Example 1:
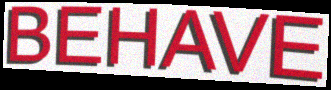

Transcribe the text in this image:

BEHAVE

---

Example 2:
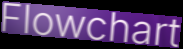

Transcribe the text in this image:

Flowchart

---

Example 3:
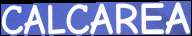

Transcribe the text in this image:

CALCAREA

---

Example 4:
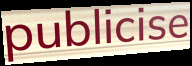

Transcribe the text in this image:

publicise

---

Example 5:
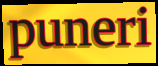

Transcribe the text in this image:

puneri